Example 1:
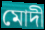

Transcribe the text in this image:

মোদী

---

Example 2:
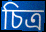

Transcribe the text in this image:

চিত্র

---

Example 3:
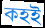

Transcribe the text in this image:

কহই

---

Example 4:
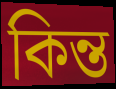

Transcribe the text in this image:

কিন্ত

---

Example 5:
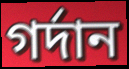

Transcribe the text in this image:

গর্দান